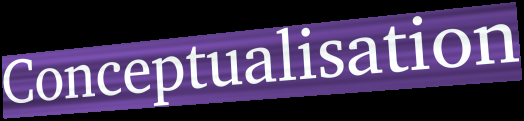
Conceptualisation